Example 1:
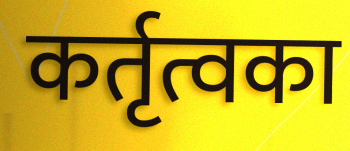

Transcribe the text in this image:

कर्तृत्वका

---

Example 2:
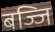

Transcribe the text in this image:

बज्जि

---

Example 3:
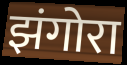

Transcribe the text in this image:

झंगोरा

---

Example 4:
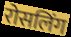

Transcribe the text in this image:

रोसलिंग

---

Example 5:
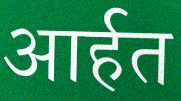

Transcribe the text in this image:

आर्हत